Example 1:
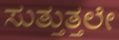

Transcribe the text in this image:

ಸುತ್ತುತ್ತಲೇ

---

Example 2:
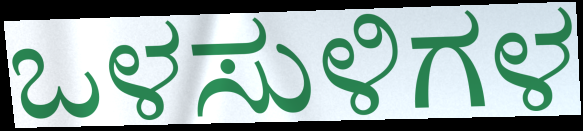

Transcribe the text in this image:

ಒಳಸುಳಿಗಳ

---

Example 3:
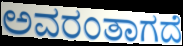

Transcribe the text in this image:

ಅವರಂತಾಗದೆ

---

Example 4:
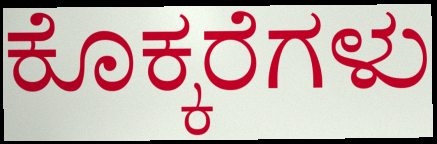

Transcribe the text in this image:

ಕೊಕ್ಕರೆಗಳು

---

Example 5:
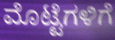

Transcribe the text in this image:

ಮೊಟ್ಟೆಗಳಿಗೆ